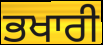
ਭਖਾਰੀ